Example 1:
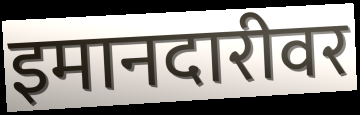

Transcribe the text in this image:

इमानदारीवर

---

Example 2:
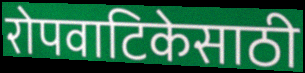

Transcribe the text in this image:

रोपवाटिकेसाठी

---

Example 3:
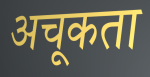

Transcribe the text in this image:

अचूकता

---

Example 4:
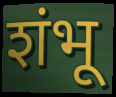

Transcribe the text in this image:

शंभू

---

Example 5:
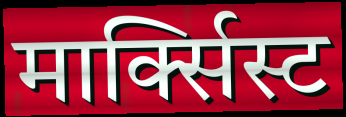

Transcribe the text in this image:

मार्क्सिस्ट